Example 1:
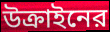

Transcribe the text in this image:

উক্রাইনের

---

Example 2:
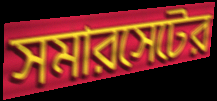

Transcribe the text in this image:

সমারসেটের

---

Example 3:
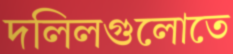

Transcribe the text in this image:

দলিলগুলোতে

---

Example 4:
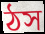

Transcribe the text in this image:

ঠস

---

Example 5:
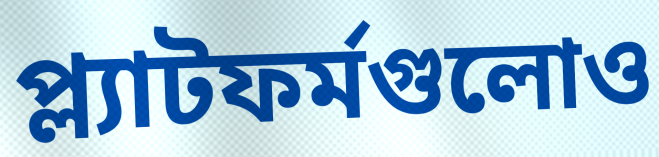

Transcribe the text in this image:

প্ল্যাটফর্মগুলোও